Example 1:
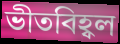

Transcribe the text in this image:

ভীতবিহ্বল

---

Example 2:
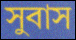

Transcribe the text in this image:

সুবাস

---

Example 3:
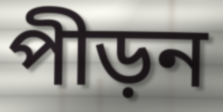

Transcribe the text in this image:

পীড়ন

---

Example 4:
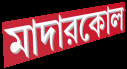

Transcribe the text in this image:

মাদারকোল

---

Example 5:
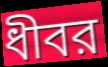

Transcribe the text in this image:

ধীবর